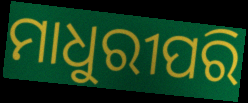
ମାଧୁରୀପରି